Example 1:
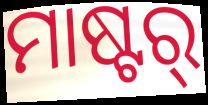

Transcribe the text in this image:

ମାଷ୍ଟର୍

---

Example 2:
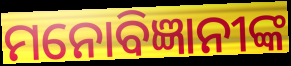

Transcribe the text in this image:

ମନୋବିଜ୍ଞାନୀଙ୍କ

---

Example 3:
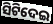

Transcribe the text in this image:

ସିଟିଦେଇ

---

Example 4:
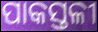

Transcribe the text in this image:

ପାକସ୍ତଳୀ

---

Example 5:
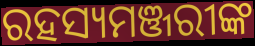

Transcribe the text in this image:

ରହସ୍ୟମଞ୍ଜରୀଙ୍କ